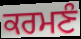
ਕਰਮਣੰ